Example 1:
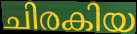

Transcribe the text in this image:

ചിരകിയ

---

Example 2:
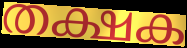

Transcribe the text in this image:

തക്ഷക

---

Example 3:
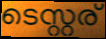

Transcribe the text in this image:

ടെസ്റ്റര്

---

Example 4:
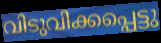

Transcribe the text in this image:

വിടുവിക്കപ്പെട്ടു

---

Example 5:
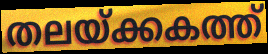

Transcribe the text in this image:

തലയ്ക്കകത്ത്